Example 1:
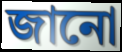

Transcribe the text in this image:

জানো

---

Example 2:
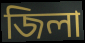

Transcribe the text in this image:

জিলা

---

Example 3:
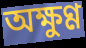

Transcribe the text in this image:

অক্ষুণ্ণ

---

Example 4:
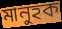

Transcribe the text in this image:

মানুহক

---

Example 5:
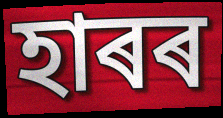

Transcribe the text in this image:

হাৰৰ